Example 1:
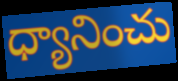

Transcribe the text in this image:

ధ్యానించు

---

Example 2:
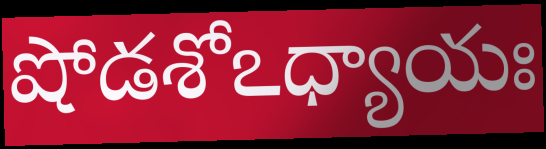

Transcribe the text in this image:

షోడశోఽధ్యాయః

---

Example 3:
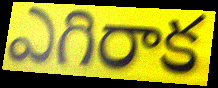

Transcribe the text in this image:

ఎగిరాక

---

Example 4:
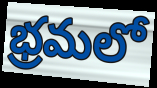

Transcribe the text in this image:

భ్రమలో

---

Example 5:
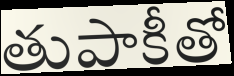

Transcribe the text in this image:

తుపాకీతో